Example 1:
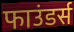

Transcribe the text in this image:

फाउंडर्स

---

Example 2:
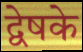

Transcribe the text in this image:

द्वेषके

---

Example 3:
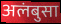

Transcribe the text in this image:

अलंबुसा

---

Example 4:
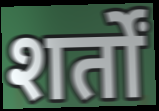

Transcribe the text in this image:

शर्तों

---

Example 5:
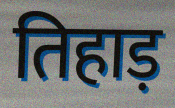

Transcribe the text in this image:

तिहाड़